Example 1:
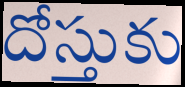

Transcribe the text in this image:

దోస్తుకు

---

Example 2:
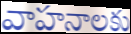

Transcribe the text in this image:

వాహనాలకు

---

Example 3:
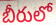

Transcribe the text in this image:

బీరులో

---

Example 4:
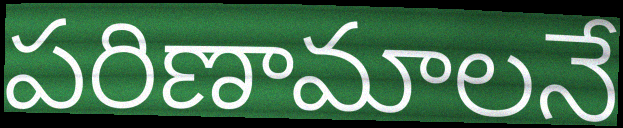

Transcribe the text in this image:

పరిణామాలనే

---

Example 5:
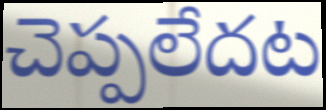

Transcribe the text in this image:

చెప్పలేదట